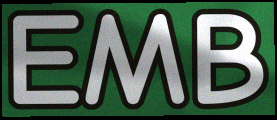
EMB